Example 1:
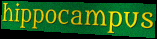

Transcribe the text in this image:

hippocampus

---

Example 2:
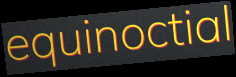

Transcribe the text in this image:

equinoctial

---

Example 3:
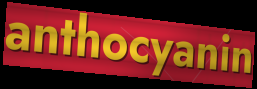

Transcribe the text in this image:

anthocyanin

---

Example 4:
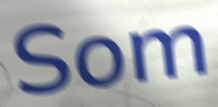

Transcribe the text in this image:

Som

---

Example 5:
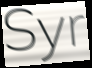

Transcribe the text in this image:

Syr